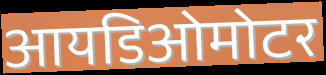
आयडिओमोटर